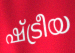
ഷ്ട്രീയ